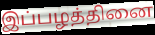
இப்பழத்தினை